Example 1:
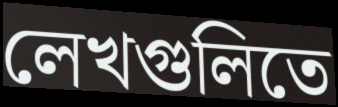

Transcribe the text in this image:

লেখগুলিতে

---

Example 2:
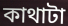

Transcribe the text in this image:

কাথাটা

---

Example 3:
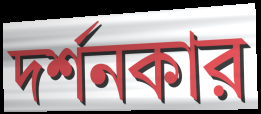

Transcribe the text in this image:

দর্শনকার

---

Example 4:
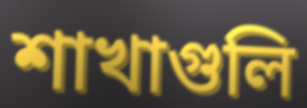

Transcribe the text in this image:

শাখাগুলি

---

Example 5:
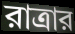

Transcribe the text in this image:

রাত্রার